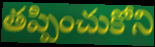
తప్పించుకోని